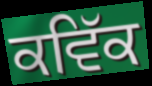
ਕਵਿੱਕ